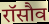
रॉसौव